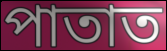
পাতাত